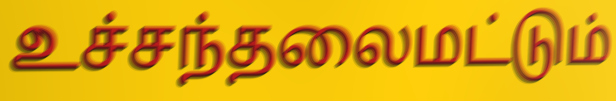
உச்சந்தலைமட்டும்